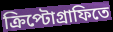
ক্রিপ্টোগ্রাফিতে